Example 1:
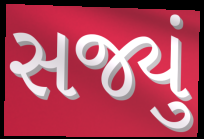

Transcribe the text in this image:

સજ્યું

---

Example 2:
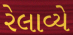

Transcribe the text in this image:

રેલાવ્યે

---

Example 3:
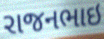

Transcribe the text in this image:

રાજનભાઇ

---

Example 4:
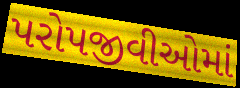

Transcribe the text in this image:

પરોપજીવીઓમાં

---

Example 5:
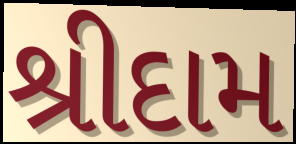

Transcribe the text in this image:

શ્રીદામ